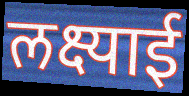
लक्ष्याई